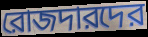
রোজদারদের